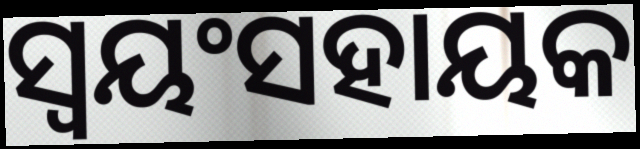
ସ୍ଵୟଂସହାୟକ